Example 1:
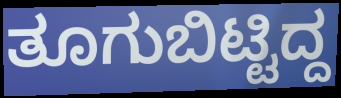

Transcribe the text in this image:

ತೂಗುಬಿಟ್ಟಿದ್ದ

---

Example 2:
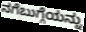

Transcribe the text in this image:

ನಗೆಬುಗ್ಗೆಯನ್ನು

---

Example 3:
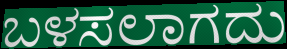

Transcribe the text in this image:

ಬಳಸಲಾಗದು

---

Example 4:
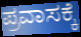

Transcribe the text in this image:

ಪ್ರವಾಸಕ್ಕೆ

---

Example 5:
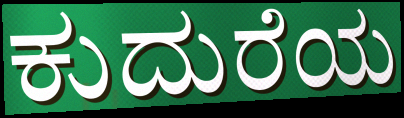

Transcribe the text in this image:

ಕುದುರೆಯ